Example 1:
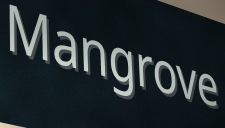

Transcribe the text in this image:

Mangrove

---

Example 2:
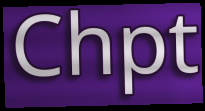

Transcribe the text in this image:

Chpt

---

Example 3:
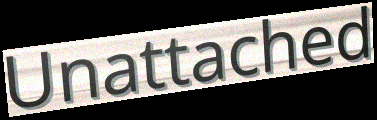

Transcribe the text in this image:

Unattached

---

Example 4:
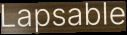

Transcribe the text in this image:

Lapsable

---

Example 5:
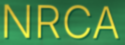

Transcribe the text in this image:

NRCA